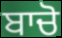
ਬਾਚੋ